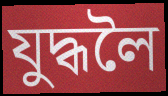
যুদ্ধলৈ